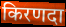
किरणदा